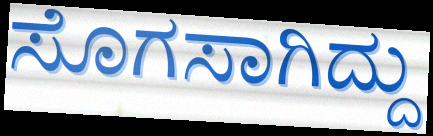
ಸೊಗಸಾಗಿದ್ದು